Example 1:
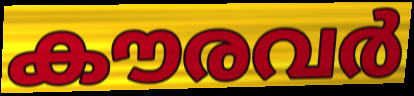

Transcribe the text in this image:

കൗരവർ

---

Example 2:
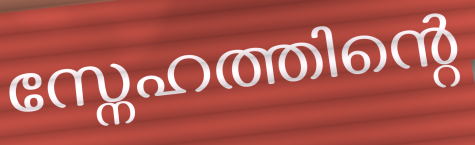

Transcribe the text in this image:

സ്നേഹത്തിന്റെ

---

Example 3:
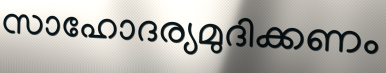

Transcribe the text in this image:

സാഹോദര്യമുദിക്കണം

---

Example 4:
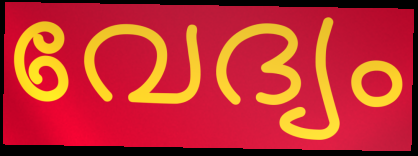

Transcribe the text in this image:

വേദ്യം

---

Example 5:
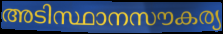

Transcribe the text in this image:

അടിസ്ഥാനസൗകര്യ